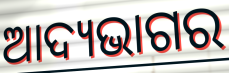
ଆଦ୍ୟଭାଗର